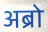
अब्रो